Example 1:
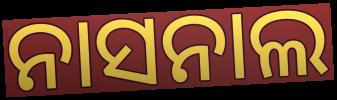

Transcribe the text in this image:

ନାସନାଲ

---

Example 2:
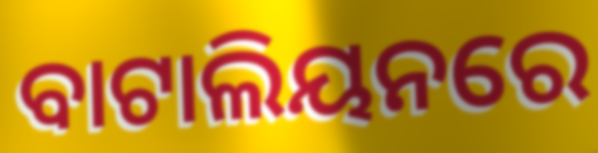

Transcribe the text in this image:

ବାଟାଲିୟନରେ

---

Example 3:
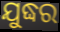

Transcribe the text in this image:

ଯୁଦ୍ଧର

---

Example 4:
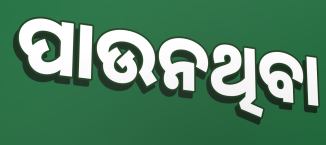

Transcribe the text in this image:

ପାଉନଥିବା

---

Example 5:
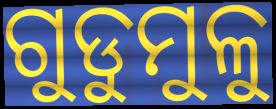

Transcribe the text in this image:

ଗୁଡୁମୁଳୁ